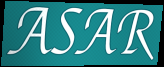
ASAR